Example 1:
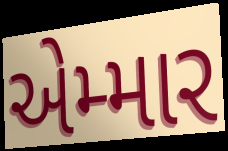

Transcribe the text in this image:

એમ્માર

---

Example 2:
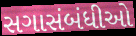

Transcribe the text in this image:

સગાસંબંધીઓ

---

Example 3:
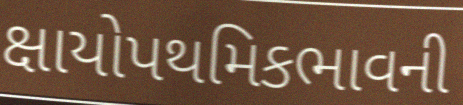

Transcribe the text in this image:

ક્ષાયોપથમિકભાવની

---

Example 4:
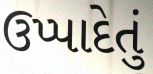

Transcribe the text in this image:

ઉપ્પાદેતું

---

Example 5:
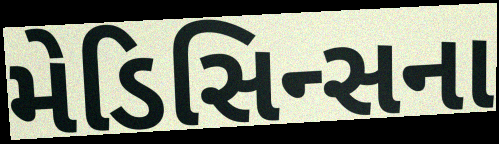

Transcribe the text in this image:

મેડિસિન્સના